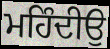
ਮਹਿੰਦੀਉ